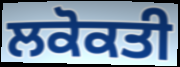
ਲਕੋਕਤੀ